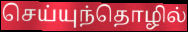
செய்யுந்தொழில்